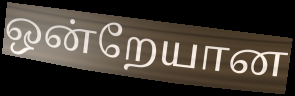
ஒன்றேயான